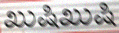
ಖುಷಿಖುಷಿ